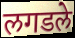
लगडले